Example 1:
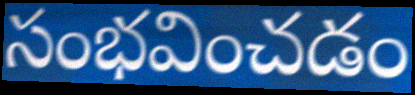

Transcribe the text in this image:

సంభవించడం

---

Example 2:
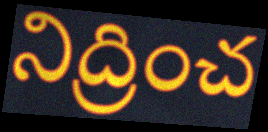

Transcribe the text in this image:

నిద్రించ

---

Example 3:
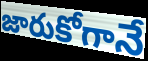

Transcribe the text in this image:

జారుకోగానే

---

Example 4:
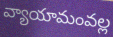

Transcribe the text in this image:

వ్యాయామంవల్ల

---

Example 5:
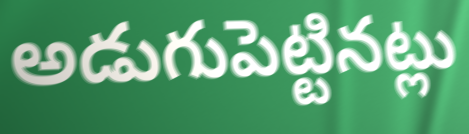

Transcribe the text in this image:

అడుగుపెట్టినట్లు